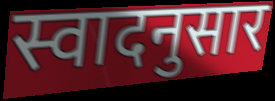
स्वादनुसार